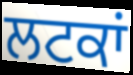
ਲਟਕਾਂ